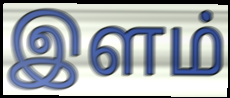
இளம்